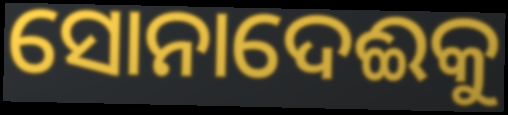
ସୋନାଦେଈକୁ